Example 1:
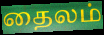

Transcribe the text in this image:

தைலம்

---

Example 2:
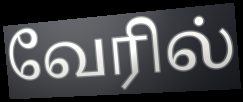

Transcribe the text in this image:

வேரில்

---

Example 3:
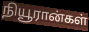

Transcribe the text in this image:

நியூரான்கள்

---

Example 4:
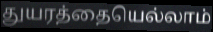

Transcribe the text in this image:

துயரத்தையெல்லாம்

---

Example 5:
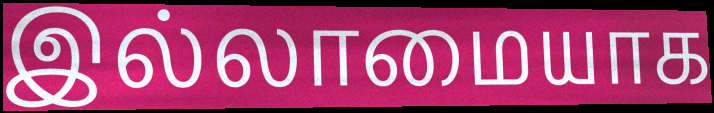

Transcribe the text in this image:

இல்லாமையாக